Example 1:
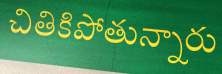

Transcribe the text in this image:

చితికిపోతున్నారు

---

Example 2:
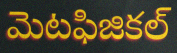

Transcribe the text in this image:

మెటఫిజికల్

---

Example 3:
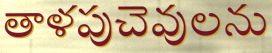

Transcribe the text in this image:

తాళపుచెవులను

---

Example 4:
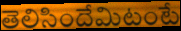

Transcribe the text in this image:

తెలిసిందేమిటంటే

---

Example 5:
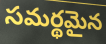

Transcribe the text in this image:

సమర్థమైన